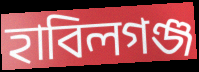
হাবিলগঞ্জ